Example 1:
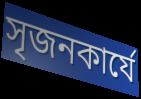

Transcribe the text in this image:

সৃজনকার্যে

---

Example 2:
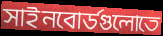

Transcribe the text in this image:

সাইনবোর্ডগুলোতে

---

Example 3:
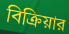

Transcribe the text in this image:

বিক্রিয়ার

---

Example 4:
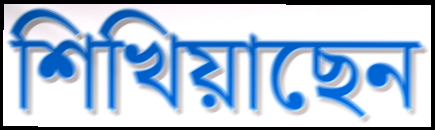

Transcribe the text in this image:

শিখিয়াছেন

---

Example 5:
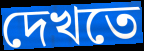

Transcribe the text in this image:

দেখতে